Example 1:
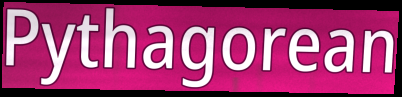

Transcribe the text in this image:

Pythagorean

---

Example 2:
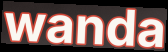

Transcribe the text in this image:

wanda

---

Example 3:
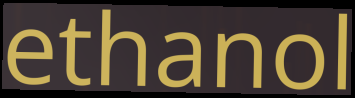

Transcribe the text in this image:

ethanol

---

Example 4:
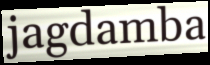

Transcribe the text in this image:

jagdamba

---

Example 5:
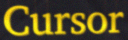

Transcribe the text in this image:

Cursor